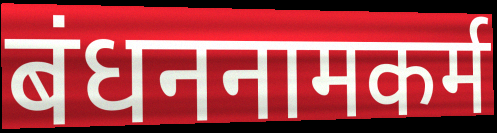
बंधननामकर्म